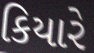
કિયારે